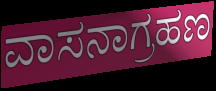
ವಾಸನಾಗ್ರಹಣ